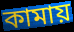
কামায়